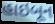
હાઇબૂન